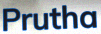
Prutha